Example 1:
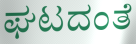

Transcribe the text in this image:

ಘಟದಂತೆ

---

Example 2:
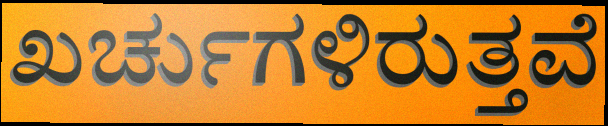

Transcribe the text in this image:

ಖರ್ಚುಗಳಿರುತ್ತವೆ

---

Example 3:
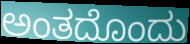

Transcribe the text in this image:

ಅಂತದೊಂದು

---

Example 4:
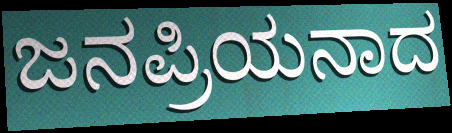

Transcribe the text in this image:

ಜನಪ್ರಿಯನಾದ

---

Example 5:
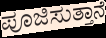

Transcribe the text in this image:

ಪೂಜಿಸುತ್ತಾನೆ